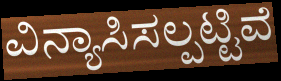
ವಿನ್ಯಾಸಿಸಲ್ಪಟ್ಟಿವೆ